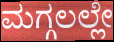
ಮಗ್ಗಲಲ್ಲೇ